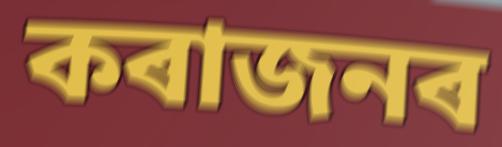
কৰাজনৰ